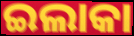
ଇଲାକା